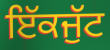
ਇੱਕਜੁੱਟ